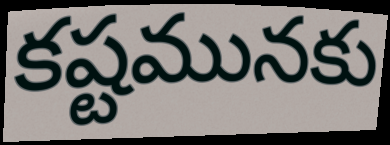
కష్టమునకు